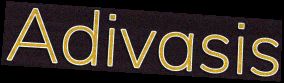
Adivasis